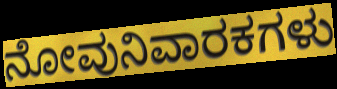
ನೋವುನಿವಾರಕಗಳು